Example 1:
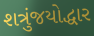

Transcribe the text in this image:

શત્રુંજયોદ્ધાર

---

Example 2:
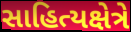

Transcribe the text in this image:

સાહિત્યક્ષેત્રે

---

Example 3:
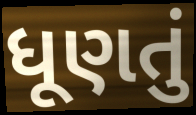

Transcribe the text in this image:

ધૂણતું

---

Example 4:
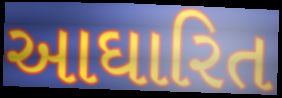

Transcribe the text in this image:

આઘારિત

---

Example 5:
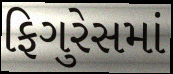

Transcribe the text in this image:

ફિગુરેસમાં